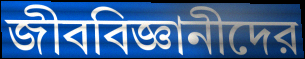
জীববিজ্ঞানীদের